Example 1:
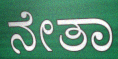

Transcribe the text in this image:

ನೇತಾ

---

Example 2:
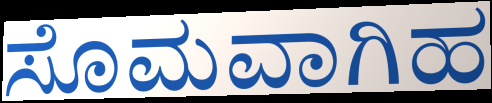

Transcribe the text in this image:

ಸೊಮವಾಗಿಹ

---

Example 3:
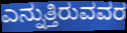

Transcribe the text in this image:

ಎನ್ನುತ್ತಿರುವವರ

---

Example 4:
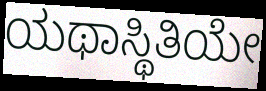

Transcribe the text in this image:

ಯಥಾಸ್ಥಿತಿಯೇ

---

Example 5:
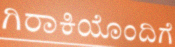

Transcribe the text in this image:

ಗಿರಾಕಿಯೊಂದಿಗೆ